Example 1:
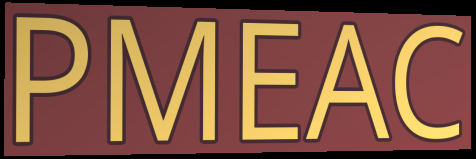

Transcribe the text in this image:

PMEAC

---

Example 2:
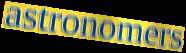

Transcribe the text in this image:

astronomers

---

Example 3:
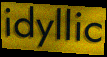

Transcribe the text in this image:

idyllic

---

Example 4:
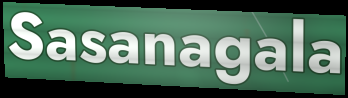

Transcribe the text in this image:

Sasanagala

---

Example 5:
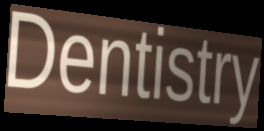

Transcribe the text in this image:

Dentistry